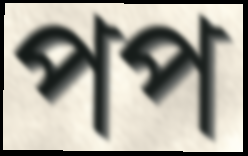
পপ